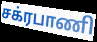
சக்ரபாணி